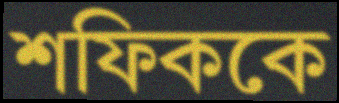
শফিককে